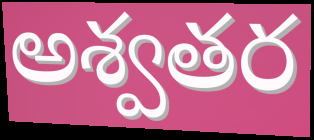
అశ్వతర